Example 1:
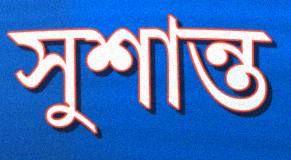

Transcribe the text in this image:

সুশান্ত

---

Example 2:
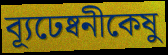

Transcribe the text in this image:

ব্যূঢেষ্বনীকেষু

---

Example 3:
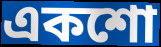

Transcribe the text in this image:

একশো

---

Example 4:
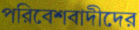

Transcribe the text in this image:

পরিবেশবাদীদের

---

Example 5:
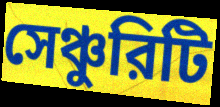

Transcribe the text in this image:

সেঞ্চুরিটি